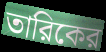
তারিকের